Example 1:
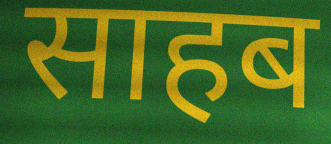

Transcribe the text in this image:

साहब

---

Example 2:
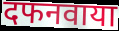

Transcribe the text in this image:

दफनवाया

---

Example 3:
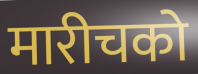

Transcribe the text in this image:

मारीचको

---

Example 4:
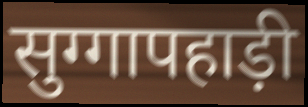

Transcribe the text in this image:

सुग्गापहाड़ी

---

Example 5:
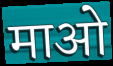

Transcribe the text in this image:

माओ